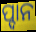
ପ୍ଦାନ